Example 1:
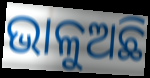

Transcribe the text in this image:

ଭାଳୁଅଛି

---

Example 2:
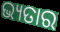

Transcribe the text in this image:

ଭ୍ୟତାର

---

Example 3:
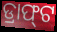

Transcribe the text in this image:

ଡ୍ରାଫ୍‌ଟ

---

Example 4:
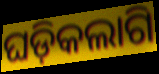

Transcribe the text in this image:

ଘଡ଼ିକଲାଗି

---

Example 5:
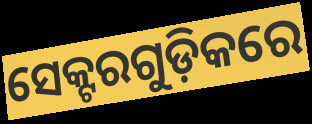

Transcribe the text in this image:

ସେକ୍ଟରଗୁଡ଼ିକରେ